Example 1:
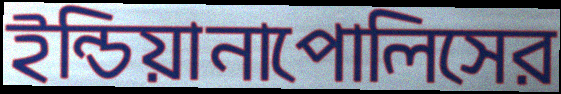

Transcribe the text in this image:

ইন্ডিয়ানাপোলিসের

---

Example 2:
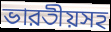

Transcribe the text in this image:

ভারতীয়সহ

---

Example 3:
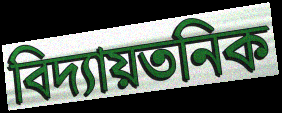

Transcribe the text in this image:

বিদ্যায়তনিক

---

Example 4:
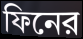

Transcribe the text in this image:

ফিনের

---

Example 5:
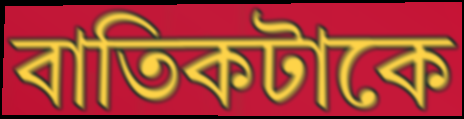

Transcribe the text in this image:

বাতিকটাকে